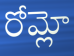
రోమ్లో